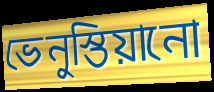
ভেনুস্তিয়ানো